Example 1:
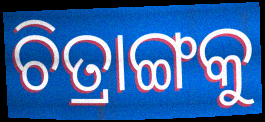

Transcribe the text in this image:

ଚିତ୍ରାଙ୍ଗକୁ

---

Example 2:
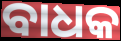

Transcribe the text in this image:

ବାଧକ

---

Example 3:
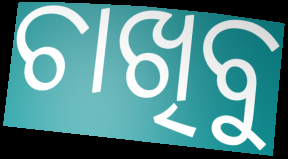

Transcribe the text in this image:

ଚାଖିବୁ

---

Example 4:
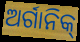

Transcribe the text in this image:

ଅର୍ଗାନିକ୍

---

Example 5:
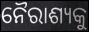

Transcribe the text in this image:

ନୈରାଶ୍ୟକୁ